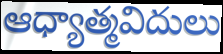
ఆధ్యాత్మవిదులు